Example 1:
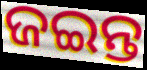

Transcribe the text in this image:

ଜଇନ୍ତ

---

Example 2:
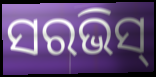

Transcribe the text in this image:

ସରଭିସ୍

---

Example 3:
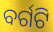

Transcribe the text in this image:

ବର୍ଗଟି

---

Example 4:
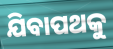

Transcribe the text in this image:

ଯିବାପଥକୁ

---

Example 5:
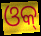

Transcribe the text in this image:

ଓକ୍